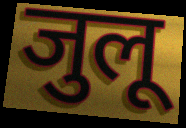
जुलू